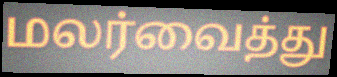
மலர்வைத்து